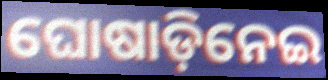
ଘୋଷାଡ଼ିନେଇ